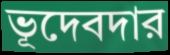
ভূদেবদার